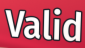
Valid